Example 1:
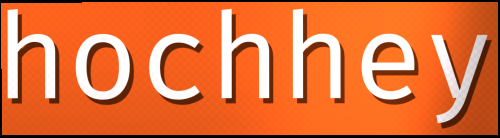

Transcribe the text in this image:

hochhey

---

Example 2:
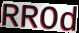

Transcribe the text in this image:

RROd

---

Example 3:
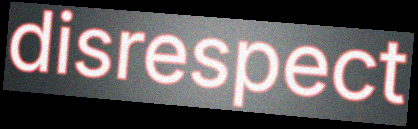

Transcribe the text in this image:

disrespect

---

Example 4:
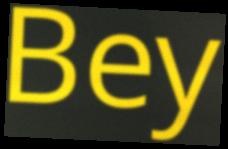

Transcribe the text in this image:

Bey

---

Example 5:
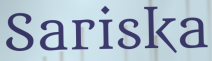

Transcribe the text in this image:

Sariska